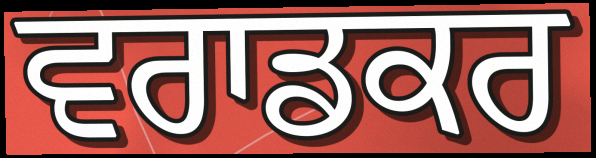
ਵਰਾਡਕਰ